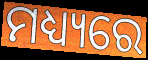
ମଧ୍ୟ୍ୟରେ